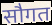
सौगत